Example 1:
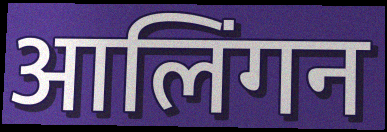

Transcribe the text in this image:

आलिंगन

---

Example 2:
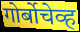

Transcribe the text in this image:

गोर्बोचेव्ह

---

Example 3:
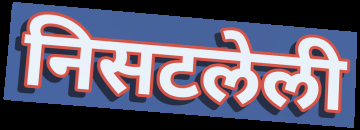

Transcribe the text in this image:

निसटलेली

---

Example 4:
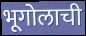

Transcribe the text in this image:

भूगोलाची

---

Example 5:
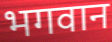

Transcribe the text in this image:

भगवान